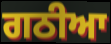
ਗਠੀਆ